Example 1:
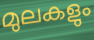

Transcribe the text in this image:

മുലകളും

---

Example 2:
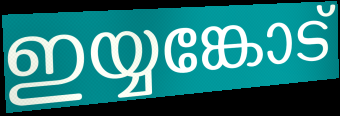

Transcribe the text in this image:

ഇയ്യങ്കോട്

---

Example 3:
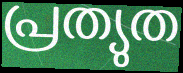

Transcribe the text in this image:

പ്രത്യുത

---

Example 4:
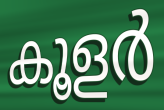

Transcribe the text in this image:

കൂളർ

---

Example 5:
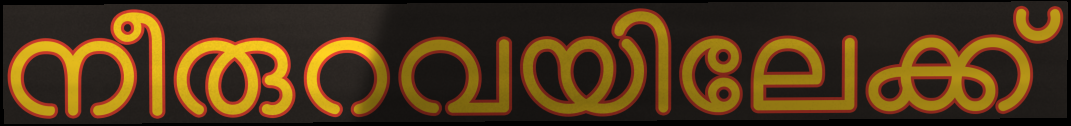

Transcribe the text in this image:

നീരുറവയിലേക്ക്